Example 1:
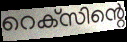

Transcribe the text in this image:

റെക്‌സിന്റെ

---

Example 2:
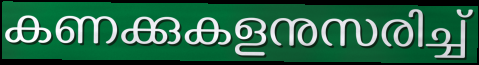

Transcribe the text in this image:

കണക്കുകളനുസരിച്ച്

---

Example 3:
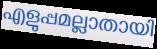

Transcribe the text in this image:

എളുപ്പമല്ലാതായി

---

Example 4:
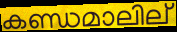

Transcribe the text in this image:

കണ്ഡമാലില്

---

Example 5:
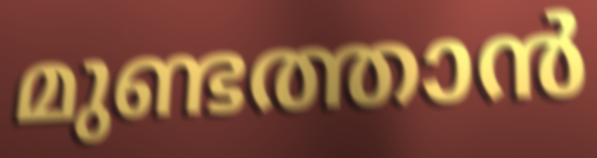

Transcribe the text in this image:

മുണ്ടത്താൻ